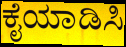
ಕೈಯಾಡಿಸಿ